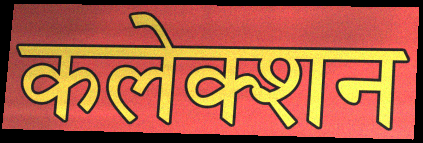
कलेक्शन